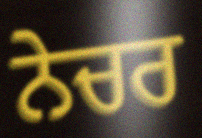
ਨੇਚਰ